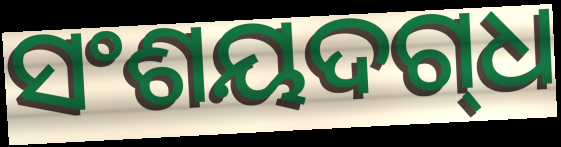
ସଂଶୟଦଗ୍‌ଧ